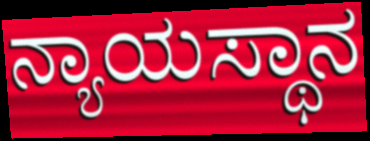
ನ್ಯಾಯಸ್ಥಾನ